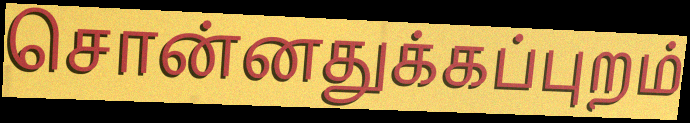
சொன்னதுக்கப்புறம்